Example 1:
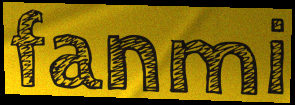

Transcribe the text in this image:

fanmi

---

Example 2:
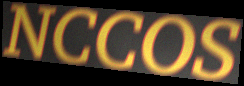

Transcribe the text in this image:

NCCOS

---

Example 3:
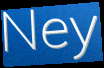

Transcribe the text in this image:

Ney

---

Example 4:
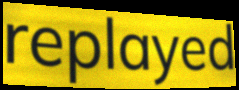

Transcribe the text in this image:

replayed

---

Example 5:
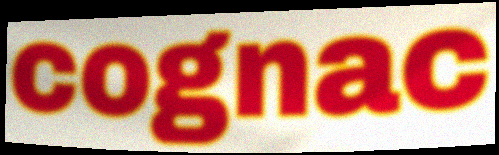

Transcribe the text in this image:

cognac